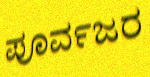
ಪೂರ್ವಜರ